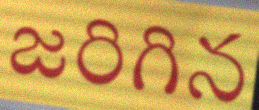
జరిగిన